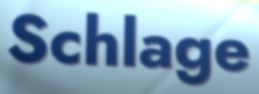
Schlage